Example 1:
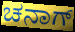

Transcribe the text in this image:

ಚನಾಗ್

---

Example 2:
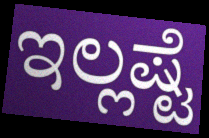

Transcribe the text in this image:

ಇಲ್ಲಷ್ಟೆ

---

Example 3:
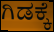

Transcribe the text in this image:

ಗಿಡಕ್ಕೆ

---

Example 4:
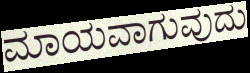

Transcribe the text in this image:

ಮಾಯವಾಗುವುದು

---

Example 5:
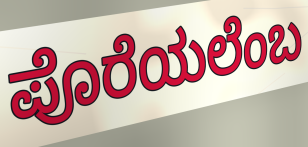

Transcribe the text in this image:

ಪೊರೆಯಲೆಂಬ